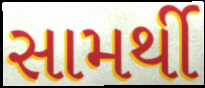
સામર્થી